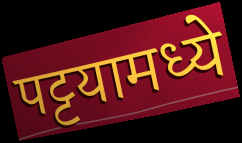
पट्टयामध्ये